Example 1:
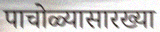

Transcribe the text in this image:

पाचोळ्यासारख्या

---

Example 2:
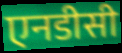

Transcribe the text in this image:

एनडीसी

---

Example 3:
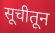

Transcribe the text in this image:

सूचीतून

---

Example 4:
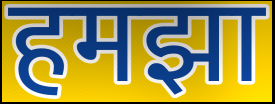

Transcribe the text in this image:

हमझा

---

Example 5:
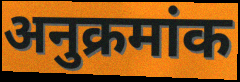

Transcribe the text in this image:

अनुक्रमांक